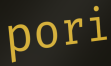
pori